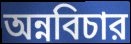
অন্নবিচার